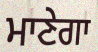
ਮਾਣੇਗਾ